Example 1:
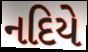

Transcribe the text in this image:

નદિયે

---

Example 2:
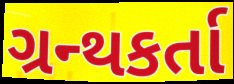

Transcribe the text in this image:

ગ્રન્થકર્તા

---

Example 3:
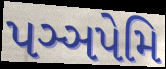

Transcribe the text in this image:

પઞ્ઞપેમિ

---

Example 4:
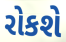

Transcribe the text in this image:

રોકશે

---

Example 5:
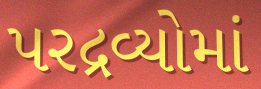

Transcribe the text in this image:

પરદ્રવ્યોમાં